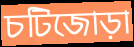
চটিজোড়া